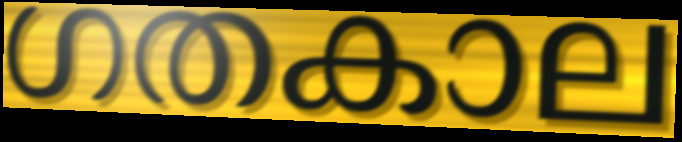
ഗതകാല